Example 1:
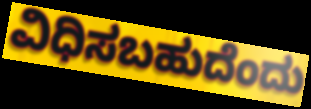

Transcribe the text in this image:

ವಿಧಿಸಬಹುದೆಂದು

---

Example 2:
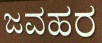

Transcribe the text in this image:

ಜವಹರ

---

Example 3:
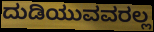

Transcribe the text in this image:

ದುಡಿಯುವವರಲ್ಲ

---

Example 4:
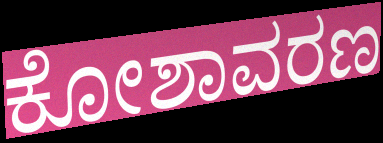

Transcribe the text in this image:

ಕೋಶಾವರಣ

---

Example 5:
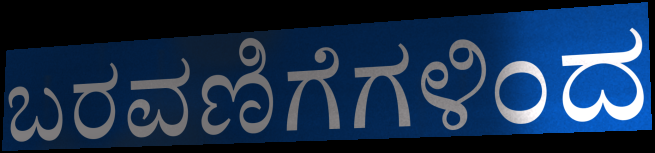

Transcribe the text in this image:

ಬರವಣಿಗೆಗಳಿಂದ